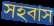
সহবাস